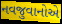
નવજુવાનોએ